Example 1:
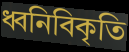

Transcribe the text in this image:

ধ্বনিবিকৃতি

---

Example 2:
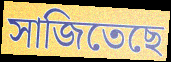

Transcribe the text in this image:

সাজিতেছে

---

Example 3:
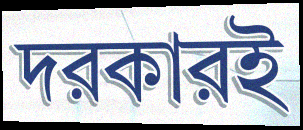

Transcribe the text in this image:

দরকারই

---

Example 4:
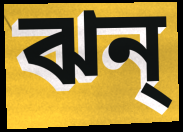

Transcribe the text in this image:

ঝন্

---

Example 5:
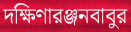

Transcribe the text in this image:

দক্ষিণারঞ্জনবাবুর